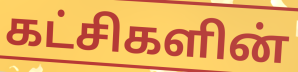
கட்சிகளின்